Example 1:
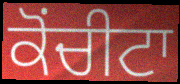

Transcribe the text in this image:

ਕੋਂਚੀਟਾ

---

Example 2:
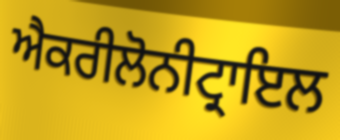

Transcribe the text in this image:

ਐਕਰੀਲੋਨੀਟ੍ਰਾਇਲ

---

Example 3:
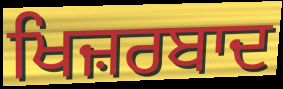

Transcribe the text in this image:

ਖਿਜ਼ਰਬਾਦ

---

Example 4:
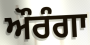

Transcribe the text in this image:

ਔਰੰਗਾ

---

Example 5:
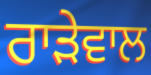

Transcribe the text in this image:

ਰਾੜੇਵਾਲ